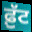
ਫ਼ੁੱਟ